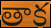
తాక